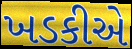
ખડકીએ